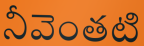
నీవెంతటి